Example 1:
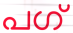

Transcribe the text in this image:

പഗ്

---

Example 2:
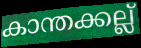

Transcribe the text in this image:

കാന്തക്കല്ല്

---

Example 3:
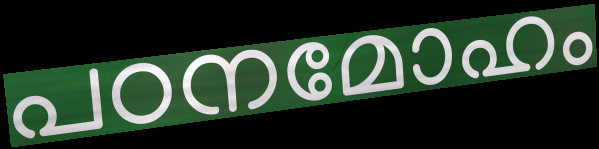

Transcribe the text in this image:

പഠനമോഹം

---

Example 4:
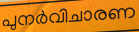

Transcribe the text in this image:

പുനർവിചാരണ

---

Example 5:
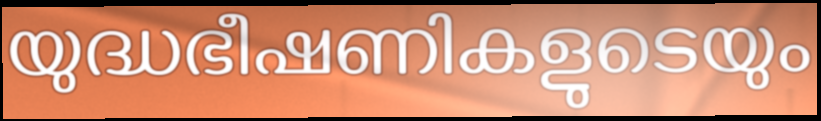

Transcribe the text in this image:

യുദ്ധഭീഷണികളുടെയും